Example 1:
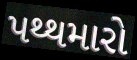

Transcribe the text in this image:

પથ્થમારો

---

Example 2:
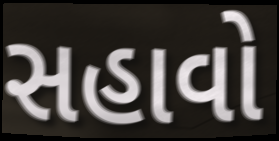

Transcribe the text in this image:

સહાવો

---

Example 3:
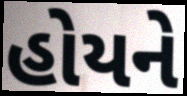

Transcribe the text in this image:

હોયને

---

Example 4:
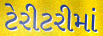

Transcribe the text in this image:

ટેરીટરીમાં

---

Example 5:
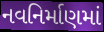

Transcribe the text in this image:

નવનિર્માણમાં